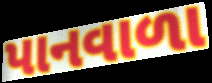
પાનવાળા